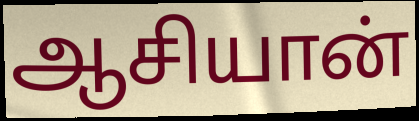
ஆசியான்